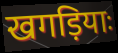
खगड़ियाः